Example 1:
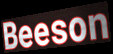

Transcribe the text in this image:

Beeson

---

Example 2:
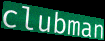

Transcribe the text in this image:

clubman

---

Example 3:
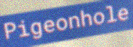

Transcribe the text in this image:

Pigeonhole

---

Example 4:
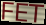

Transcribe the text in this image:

FET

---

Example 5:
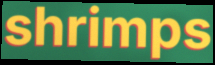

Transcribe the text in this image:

shrimps